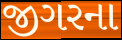
જીગરના